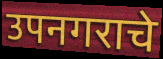
उपनगराचे